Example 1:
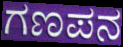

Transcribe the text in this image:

ಗಣಪನ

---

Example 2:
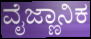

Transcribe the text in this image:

ವೈಜ್ಣಾನಿಕ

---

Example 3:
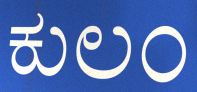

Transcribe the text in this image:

ಕುಲಂ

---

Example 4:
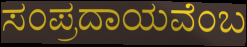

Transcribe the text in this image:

ಸಂಪ್ರದಾಯವೆಂಬ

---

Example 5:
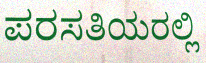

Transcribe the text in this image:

ಪರಸತಿಯರಲ್ಲಿ